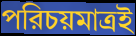
পরিচয়মাত্রই